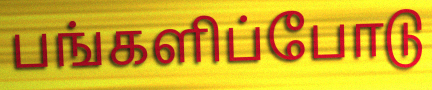
பங்களிப்போடு